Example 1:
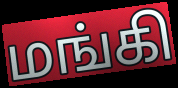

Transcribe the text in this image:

மங்கி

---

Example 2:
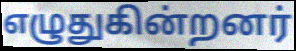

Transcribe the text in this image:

எழுதுகின்றனர்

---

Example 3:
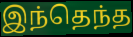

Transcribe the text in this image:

இந்தெந்த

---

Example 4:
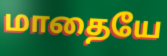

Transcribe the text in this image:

மாதையே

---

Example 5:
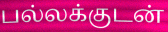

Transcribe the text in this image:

பல்லக்குடன்